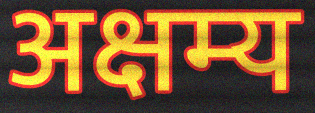
अक्षम्य